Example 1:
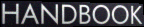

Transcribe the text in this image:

HANDBOOK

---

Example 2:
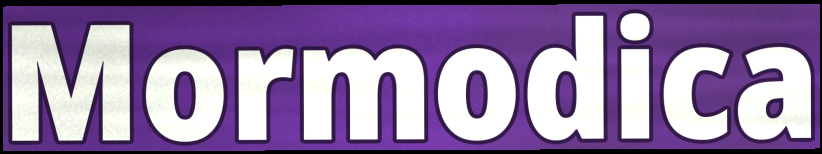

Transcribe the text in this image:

Mormodica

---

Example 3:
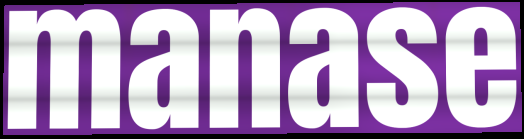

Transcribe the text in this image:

manase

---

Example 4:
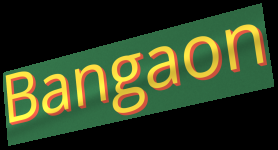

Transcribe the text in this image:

Bangaon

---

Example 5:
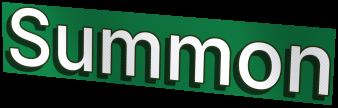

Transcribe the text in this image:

Summon